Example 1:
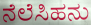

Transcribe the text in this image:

ನೆಲೆಸಿಹನು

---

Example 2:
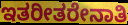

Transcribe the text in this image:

ಇತರೀತರೇನಾತಿ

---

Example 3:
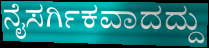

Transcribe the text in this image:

ನೈಸರ್ಗಿಕವಾದದ್ದು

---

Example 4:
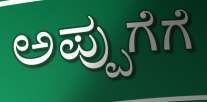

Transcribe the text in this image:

ಅಪ್ಪುಗೆಗೆ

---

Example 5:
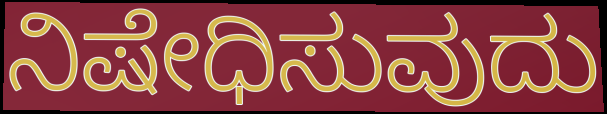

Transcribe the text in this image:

ನಿಷೇಧಿಸುವುದು